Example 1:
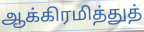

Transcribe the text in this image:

ஆக்கிரமித்துத்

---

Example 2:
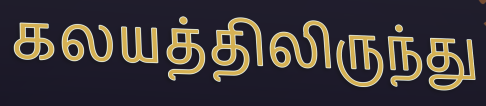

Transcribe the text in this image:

கலயத்திலிருந்து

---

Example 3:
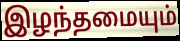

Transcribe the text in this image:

இழந்தமையும்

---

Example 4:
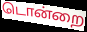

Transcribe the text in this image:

டொன்றை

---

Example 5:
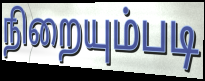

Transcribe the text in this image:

நிறையும்படி